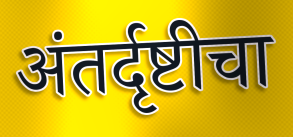
अंतर्दृष्टीचा